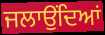
ਜਲਾਉਂਦਿਆਂ